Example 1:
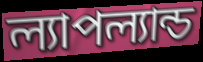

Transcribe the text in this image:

ল্যাপল্যান্ড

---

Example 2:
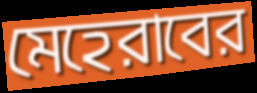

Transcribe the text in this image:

মেহেরাবের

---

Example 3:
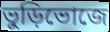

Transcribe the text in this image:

ভুড়িভোজে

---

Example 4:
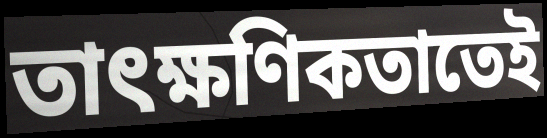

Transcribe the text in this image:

তাৎক্ষণিকতাতেই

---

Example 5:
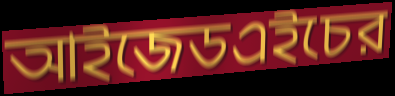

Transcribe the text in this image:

আইজেডএইচের